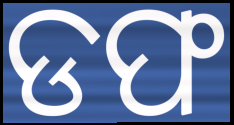
ଡଫ